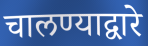
चालण्याद्वारे